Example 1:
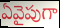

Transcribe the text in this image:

ఏవైపుగా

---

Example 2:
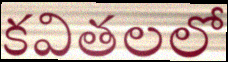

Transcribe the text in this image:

కవితలలో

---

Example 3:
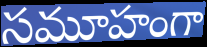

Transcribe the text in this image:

సమూహంగా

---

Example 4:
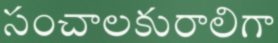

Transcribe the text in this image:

సంచాలకురాలిగా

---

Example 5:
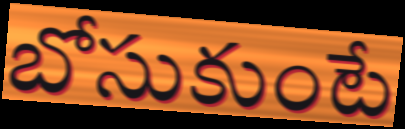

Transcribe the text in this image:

బోసుకుంటే